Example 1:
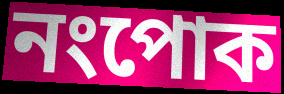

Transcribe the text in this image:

নংপোক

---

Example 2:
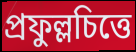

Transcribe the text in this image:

প্রফুল্লচিত্তে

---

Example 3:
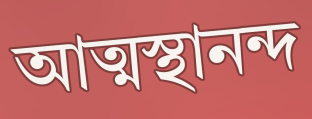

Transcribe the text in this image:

আত্মস্থানন্দ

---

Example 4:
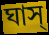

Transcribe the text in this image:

ঘাস্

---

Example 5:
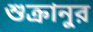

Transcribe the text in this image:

শুক্রানুর